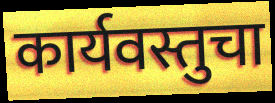
कार्यवस्तुचा